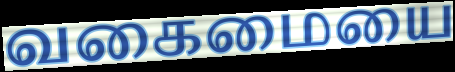
வகைமையை